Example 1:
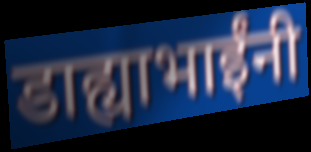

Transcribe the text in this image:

डाह्याभाईंनी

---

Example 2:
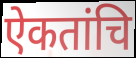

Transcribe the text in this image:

ऐकतांचि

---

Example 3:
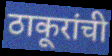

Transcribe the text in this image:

ठाकूरांची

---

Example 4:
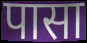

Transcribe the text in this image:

पासा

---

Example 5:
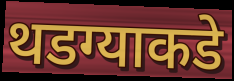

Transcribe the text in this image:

थडग्याकडे